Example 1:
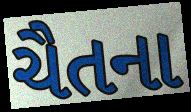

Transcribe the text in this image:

ચૈતના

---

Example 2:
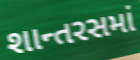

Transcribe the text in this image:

શાન્તરસમાં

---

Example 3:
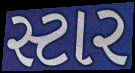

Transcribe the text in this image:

સ્ટાર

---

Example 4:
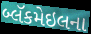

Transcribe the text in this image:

બ્લૅકમેઇલના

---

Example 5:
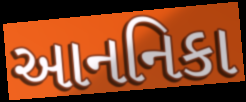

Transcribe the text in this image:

આનનિકા